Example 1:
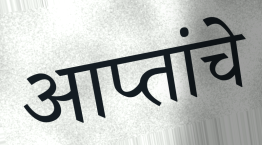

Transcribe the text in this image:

आप्तांचे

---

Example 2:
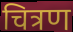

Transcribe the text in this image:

चित्रण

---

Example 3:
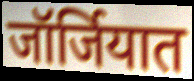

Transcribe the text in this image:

जॉर्जियात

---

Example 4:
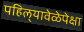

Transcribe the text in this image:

पहिल्यावेळेपेक्षा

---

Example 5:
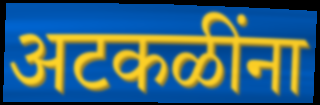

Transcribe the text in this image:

अटकळींना